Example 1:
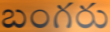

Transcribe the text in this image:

బంగరు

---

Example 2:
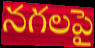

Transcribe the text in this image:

నగలపై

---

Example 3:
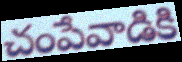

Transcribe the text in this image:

చంపేవాడికి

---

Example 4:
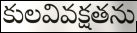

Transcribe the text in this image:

కులవివక్షతను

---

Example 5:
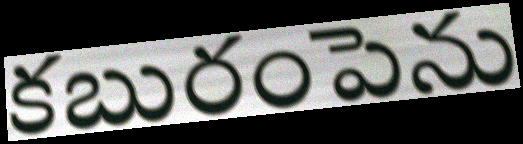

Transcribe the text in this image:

కబురంపెను